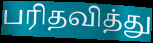
பரிதவித்து